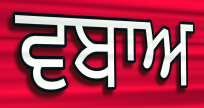
ਵਬਾਅ